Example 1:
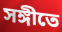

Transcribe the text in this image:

সঙ্গীতে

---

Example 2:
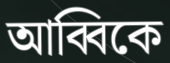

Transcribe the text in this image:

আব্বিকে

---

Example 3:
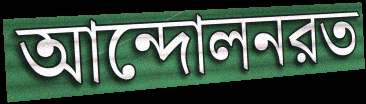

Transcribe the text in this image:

আন্দোলনরত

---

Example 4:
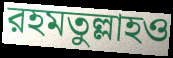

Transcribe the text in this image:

রহমতুল্লাহও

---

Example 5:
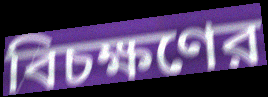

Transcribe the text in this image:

বিচক্ষণের